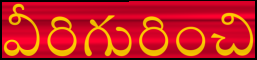
వీరిగురించి